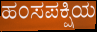
ಹಂಸಪಕ್ಷಿಯ